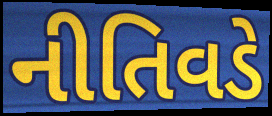
નીતિવડે